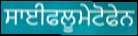
ਸਾਈਫਲੂਮੇਟੋਫੇਨ